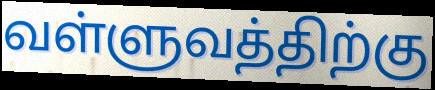
வள்ளுவத்திற்கு